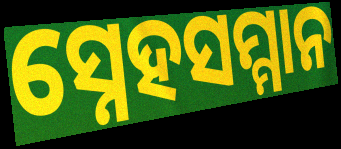
ସ୍ନେହସମ୍ମାନ